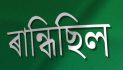
ৰান্ধিছিল